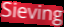
Sieving